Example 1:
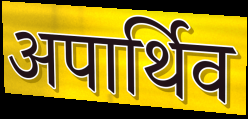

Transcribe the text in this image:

अपार्थिव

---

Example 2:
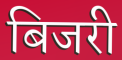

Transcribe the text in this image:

बिजरी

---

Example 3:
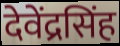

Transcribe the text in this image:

देवेंद्रसिंह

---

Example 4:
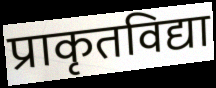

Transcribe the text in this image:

प्राकृतविद्या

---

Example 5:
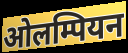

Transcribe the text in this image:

ओलम्पियन